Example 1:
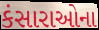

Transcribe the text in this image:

કંસારાઓના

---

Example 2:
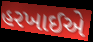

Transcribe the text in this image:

હરખાઈએ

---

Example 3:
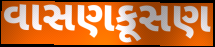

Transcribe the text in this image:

વાસણકૂસણ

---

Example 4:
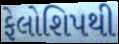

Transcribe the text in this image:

ફેલોશિપથી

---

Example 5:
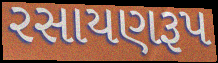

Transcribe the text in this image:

રસાયણરૂપ